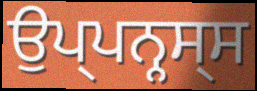
ਉਪ੍ਪਨ੍ਨਸ੍ਸ